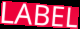
LABEL